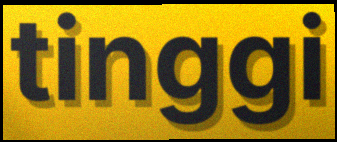
tinggi